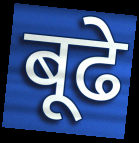
बूढे